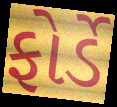
ફોર્ડે